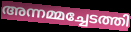
അന്നമ്മച്ചേടത്തി